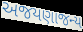
અજયણાજન્ય